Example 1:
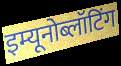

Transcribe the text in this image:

इम्यूनोब्लॉटिंग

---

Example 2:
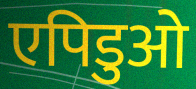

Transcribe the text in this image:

एपिडुओ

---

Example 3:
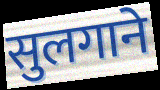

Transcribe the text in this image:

सुलगाने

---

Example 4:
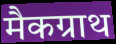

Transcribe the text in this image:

मैकग्राथ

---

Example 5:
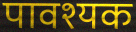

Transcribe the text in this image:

पावश्यक